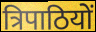
त्रिपाठियों